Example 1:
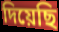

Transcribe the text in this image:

দিয়েছি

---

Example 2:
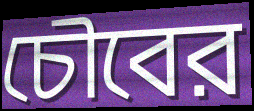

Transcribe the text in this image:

চৌবের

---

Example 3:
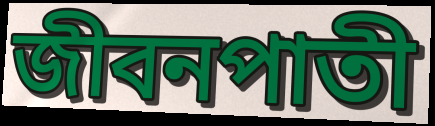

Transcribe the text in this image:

জীবনপাতী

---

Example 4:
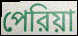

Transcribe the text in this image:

পেরিয়া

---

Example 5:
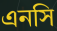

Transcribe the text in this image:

এনসি